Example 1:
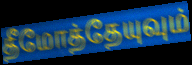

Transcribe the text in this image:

தீமோத்தேயுவும்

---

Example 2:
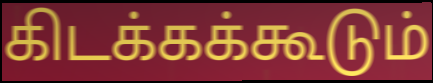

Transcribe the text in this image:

கிடக்கக்கூடும்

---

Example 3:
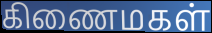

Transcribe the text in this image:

கிணைமகள்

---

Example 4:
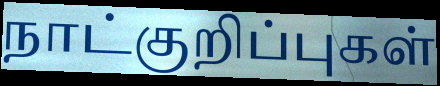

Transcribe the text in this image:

நாட்குறிப்புகள்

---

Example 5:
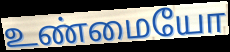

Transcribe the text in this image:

உண்மையோ